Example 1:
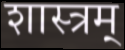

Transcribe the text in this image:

शास्त्रम्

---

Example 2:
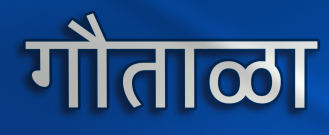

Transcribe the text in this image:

गौताळा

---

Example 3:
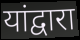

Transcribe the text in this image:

यांद्वारा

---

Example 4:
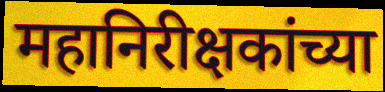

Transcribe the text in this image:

महानिरीक्षकांच्या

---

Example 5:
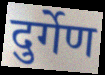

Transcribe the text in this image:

दुर्गेण